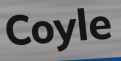
Coyle